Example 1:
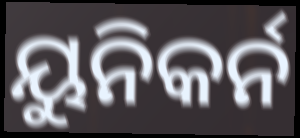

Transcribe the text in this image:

ୟୁନିକର୍ନ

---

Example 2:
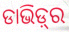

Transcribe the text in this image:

ଡାଭିଡ଼୍‍ର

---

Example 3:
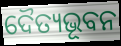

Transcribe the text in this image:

ଦୈତ୍ୟଭୂବନ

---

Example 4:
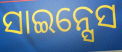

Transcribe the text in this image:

ସାଇନ୍ସେସ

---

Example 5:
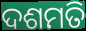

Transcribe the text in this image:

ଦଶମତି